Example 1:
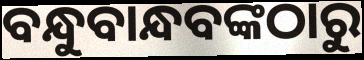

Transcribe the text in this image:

ବନ୍ଧୁବାନ୍ଧବଙ୍କଠାରୁ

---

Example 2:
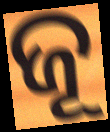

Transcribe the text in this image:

ଜୂ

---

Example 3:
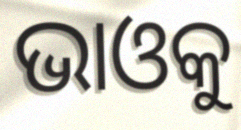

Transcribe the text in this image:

ଭାଓକୁ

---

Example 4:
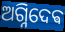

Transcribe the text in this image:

ଅଗ୍ନିଦେଵ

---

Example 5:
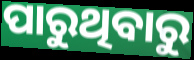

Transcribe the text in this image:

ପାରୁଥିବାରୁ